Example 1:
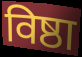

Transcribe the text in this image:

विष्ठा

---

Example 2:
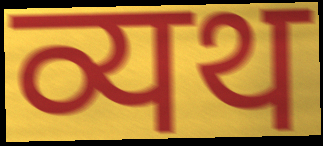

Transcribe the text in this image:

व्यथ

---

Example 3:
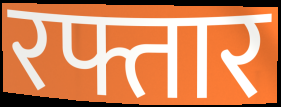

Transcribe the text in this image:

रफ्‍तार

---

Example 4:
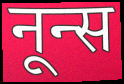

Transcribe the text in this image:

नून्स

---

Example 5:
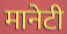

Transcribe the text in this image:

मानेटी